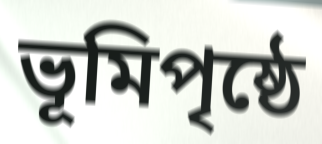
ভূমিপৃষ্ঠে